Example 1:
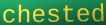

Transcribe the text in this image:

chested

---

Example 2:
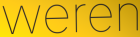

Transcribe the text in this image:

weren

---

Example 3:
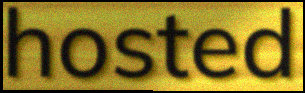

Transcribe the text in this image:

hosted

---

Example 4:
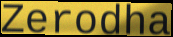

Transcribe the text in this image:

Zerodha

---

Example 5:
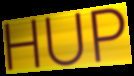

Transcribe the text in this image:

HUP